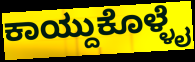
ಕಾಯ್ದುಕೊಳ್ಳೈ